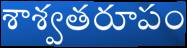
శాశ్వతరూపం